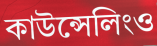
কাউন্সেলিংও